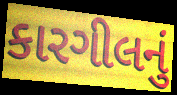
કારગીલનું